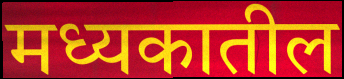
मध्यकातील